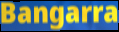
Bangarra